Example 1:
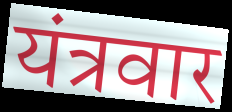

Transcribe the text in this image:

यंत्रवार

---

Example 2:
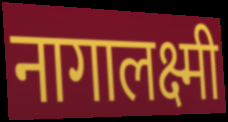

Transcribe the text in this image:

नागालक्ष्मी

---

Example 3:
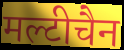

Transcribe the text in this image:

मल्टीचैन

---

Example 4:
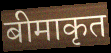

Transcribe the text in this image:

बीमाकृत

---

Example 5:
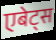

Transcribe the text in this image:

एबेट्स